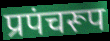
प्रपंचरूप